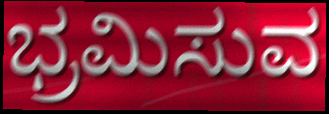
ಭ್ರಮಿಸುವ